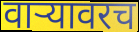
वाऱ्यावरच